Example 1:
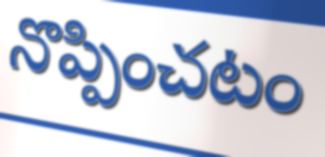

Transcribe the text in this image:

నొప్పించటం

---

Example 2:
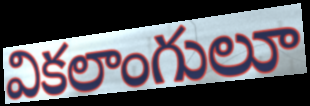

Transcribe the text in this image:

వికలాంగులూ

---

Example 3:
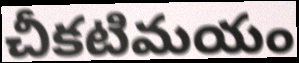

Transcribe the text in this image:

చీకటిమయం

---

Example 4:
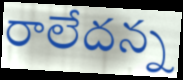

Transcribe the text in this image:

రాలేదన్న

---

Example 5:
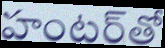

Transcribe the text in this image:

హంటర్‌తో